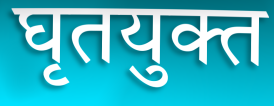
घृतयुक्त